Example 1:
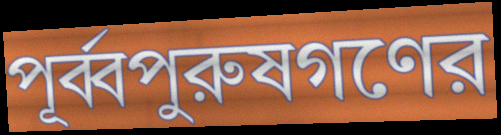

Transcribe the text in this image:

পূর্ব্বপুরুষগণের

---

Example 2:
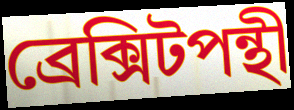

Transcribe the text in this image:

ব্রেক্সিটপন্থী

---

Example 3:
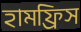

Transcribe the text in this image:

হামফ্রিস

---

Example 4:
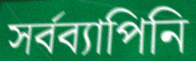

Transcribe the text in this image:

সর্বব্যাপিনি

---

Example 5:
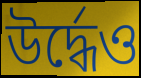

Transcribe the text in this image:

উর্দ্ধেও